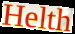
Helth